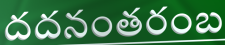
దదనంతరంబ